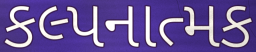
કલ્પનાત્મક